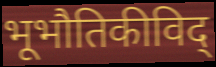
भूभौतिकीविद्